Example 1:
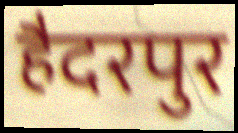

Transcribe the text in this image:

हैदरपुर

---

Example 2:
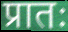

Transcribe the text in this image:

प्रातः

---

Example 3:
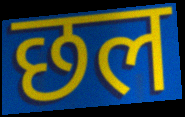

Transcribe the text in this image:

छल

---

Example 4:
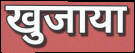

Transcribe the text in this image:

खुजाया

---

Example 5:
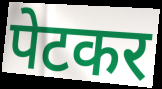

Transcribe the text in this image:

पेटकर